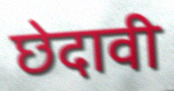
छेदावी